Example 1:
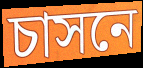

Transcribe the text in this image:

চাসনে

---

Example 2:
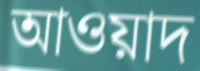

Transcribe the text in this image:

আওয়াদ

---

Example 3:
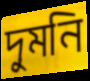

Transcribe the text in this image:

দুমনি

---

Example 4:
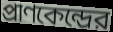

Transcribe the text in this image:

প্রাণকেন্দ্রের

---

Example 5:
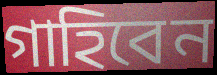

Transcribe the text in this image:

গাহিবেন